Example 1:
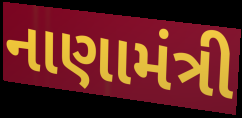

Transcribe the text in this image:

નાણામંત્રી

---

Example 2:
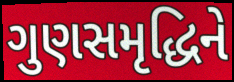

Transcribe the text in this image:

ગુણસમૃદ્ધિને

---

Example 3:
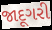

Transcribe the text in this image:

જાદૂગરી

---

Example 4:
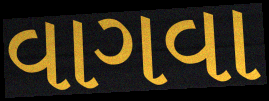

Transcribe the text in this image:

વાગવા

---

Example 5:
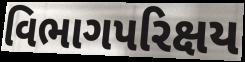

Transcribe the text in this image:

વિભાગપરિક્ષય